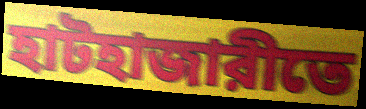
হাটহাজারীতে